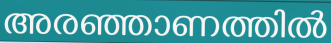
അരഞ്ഞാണത്തിൽ